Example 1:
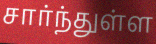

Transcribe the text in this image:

சார்ந்துள்ள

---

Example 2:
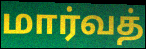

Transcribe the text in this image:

மார்வத்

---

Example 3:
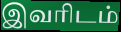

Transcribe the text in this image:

இவரிடம்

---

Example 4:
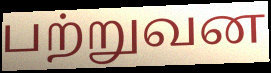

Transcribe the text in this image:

பற்றுவன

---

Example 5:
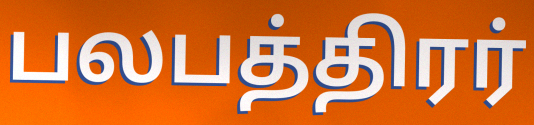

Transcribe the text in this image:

பலபத்திரர்